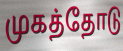
முகத்தோடு